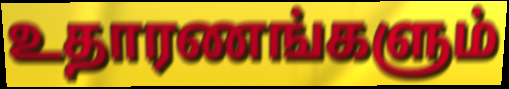
உதாரணங்களும்